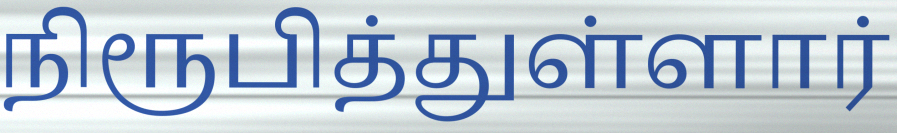
நிரூபித்துள்ளார்